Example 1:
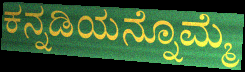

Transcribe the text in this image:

ಕನ್ನಡಿಯನ್ನೊಮ್ಮೆ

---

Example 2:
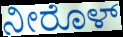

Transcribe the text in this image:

ನೀರೊಳ್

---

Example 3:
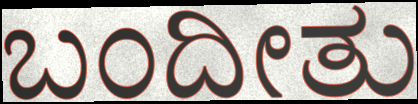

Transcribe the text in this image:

ಬಂದೀತು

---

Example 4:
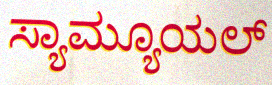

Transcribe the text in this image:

ಸ್ಯಾಮ್ಯೂಯಲ್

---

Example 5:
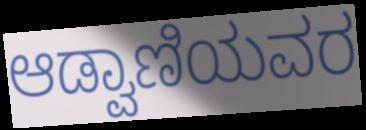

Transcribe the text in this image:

ಆಡ್ವಾಣಿಯವರ